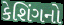
કેશિંગનો